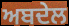
ਅਬਦੇਲ